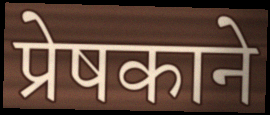
प्रेषकाने